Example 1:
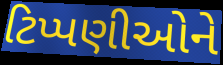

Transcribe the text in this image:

ટિપ્પણીઓને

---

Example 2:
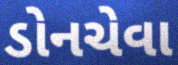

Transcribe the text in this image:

ડોનચેવા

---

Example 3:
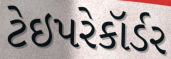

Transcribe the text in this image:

ટેઇપરેકૉર્ડર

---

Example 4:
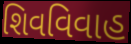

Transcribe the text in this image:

શિવવિવાહ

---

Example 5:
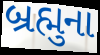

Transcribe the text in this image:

બ્રહ્મુના